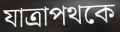
যাত্রাপথকে